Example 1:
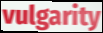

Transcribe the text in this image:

vulgarity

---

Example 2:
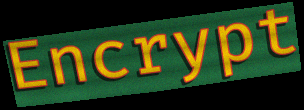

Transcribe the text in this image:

Encrypt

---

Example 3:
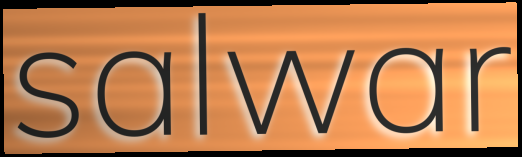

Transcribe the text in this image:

salwar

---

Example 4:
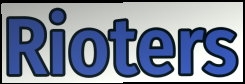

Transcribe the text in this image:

Rioters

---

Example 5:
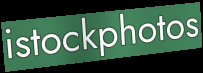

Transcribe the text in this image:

istockphotos